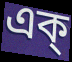
এক্